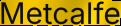
Metcalfe